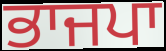
ਭਾਜਪਾ